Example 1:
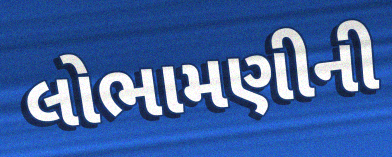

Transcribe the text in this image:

લોભામણીની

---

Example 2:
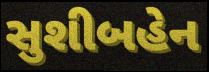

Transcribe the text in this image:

સુશીબહેન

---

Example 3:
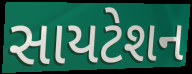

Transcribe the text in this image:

સાયટેશન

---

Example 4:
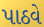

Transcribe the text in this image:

પાઠવે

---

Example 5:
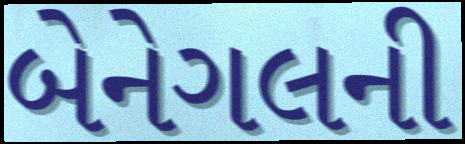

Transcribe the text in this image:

બેનેગલની